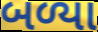
બળ્યા